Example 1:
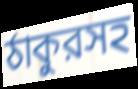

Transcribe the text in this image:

ঠাকুরসহ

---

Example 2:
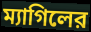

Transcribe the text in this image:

ম্যাগিলের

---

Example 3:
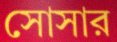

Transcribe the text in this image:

সোসার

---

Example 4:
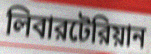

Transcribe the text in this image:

লিবারটেরিয়ান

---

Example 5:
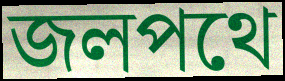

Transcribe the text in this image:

জলপথে